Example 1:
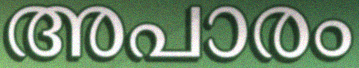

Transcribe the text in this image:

അപാരം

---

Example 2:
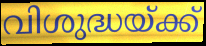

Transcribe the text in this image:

വിശുദ്ധയ്ക്ക്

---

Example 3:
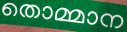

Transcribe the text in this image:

തൊമ്മാന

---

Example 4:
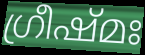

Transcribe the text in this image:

ഗ്രീഷ്മഃ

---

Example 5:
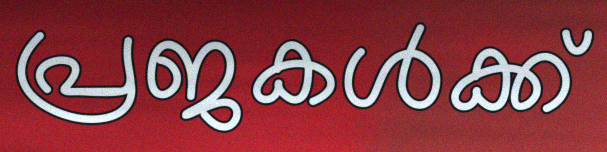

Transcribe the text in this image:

പ്രജകൾക്ക്